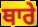
ਥਾਰੇ